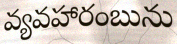
వ్యవహారంబును